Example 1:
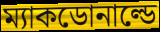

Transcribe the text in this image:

ম্যাকডোনাল্ডে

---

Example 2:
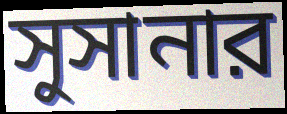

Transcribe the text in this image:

সুসানার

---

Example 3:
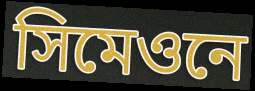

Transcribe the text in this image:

সিমেওনে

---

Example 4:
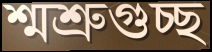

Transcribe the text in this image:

শ্মশ্রুগুচ্ছ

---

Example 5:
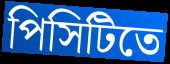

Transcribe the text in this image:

পিসিটিতে